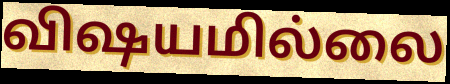
விஷயமில்லை